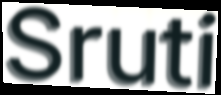
Sruti